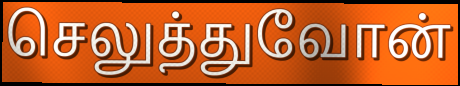
செலுத்துவோன்